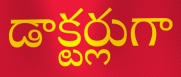
డాక్టర్లుగా